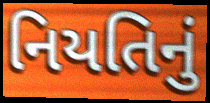
નિયતિનું